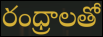
రంధ్రాలతో